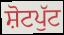
ਸ਼ੋਟਪੁੱਟ